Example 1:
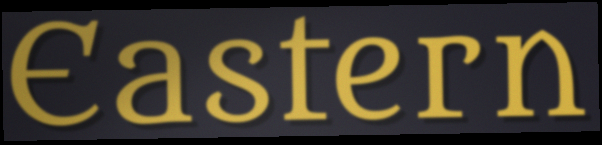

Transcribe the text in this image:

Eastern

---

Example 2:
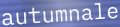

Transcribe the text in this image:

autumnale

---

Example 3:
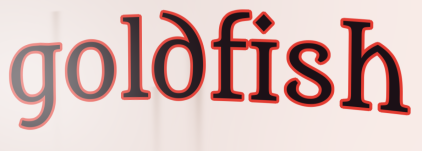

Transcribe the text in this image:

goldfish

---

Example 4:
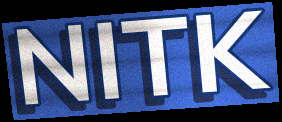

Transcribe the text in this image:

NITK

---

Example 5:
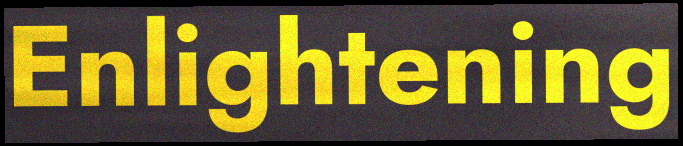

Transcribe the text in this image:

Enlightening